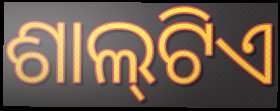
ଶାଲ୍‌ଟିଏ